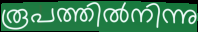
രൂപത്തിൽനിന്നു